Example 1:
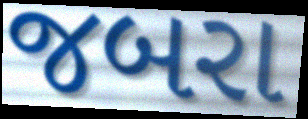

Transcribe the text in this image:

જબરા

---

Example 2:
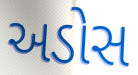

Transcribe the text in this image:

અડોસ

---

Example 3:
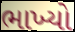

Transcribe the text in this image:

ભાખ્યો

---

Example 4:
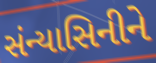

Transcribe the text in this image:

સંન્યાસિનીને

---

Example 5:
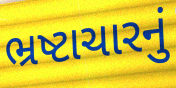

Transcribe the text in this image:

ભ્રષ્ટાચારનું